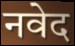
नवेद